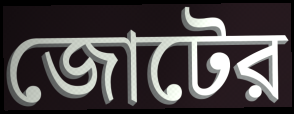
জোটের